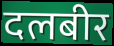
दलबीर